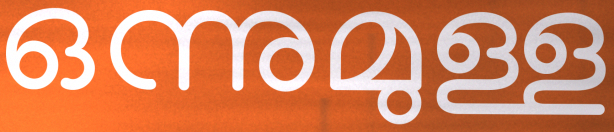
ഒന്നുമുള്ള